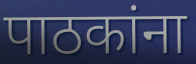
पाठकांना